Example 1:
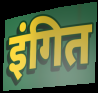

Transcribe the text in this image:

इंगित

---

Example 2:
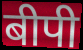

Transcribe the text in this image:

बीपी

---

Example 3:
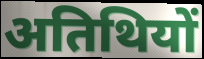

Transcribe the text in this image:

अतिथियों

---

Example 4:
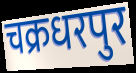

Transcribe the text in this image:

चक्रधरपुर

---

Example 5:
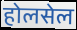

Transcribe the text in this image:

होलसेल